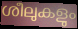
ശീലുകളും